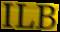
ILB